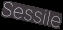
Sessile